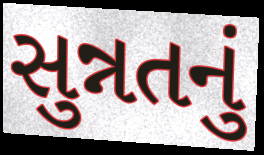
સુન્નતનું